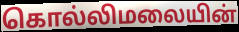
கொல்லிமலையின்